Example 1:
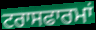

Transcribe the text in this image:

ਟਰਾਸਫਾਰਮਾਂ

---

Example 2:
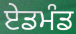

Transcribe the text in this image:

ਏਡਮੰਡ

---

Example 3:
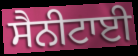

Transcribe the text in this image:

ਸੈਨੀਟਾਈ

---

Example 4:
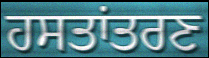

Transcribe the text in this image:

ਹਸਤਾਂਤਰਣ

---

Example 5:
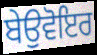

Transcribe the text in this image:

ਬੇਉਵੋਇਰ